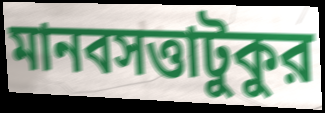
মানবসত্তাটুকুর